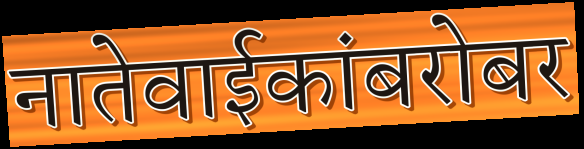
नातेवाईकांबरोबर